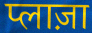
प्लाज़ा